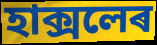
হাক্সলেৰ